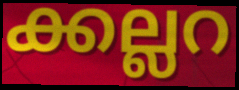
ക്കല്ലറ